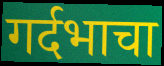
गर्दभाचा